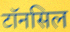
टॉनसिल